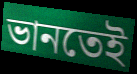
ভানতেই